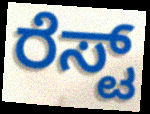
ರೆಸ್ಟ್